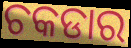
ଚକଡାର